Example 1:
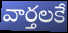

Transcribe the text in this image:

వార్తలకే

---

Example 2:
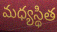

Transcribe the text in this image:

మధ్యస్థిత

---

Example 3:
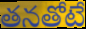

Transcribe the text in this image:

తనతోటే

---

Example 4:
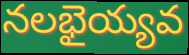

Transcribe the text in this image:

నలభైయ్యవ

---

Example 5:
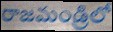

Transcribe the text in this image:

రాజమండ్రిలో